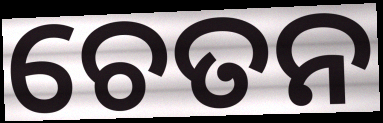
ଚେତନ